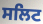
ਸਲਿਟ